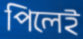
পিলেই